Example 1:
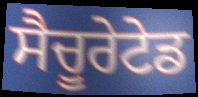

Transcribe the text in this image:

ਸੈਚੂਰੇਟੇਡ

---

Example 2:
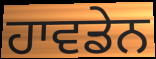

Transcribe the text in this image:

ਹਾਵਡੇਨ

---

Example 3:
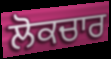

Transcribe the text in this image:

ਲੋਕਚਾਰ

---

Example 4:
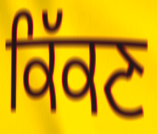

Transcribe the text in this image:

ਕਿੱਕਣ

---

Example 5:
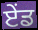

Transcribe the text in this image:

ਏੰਡ